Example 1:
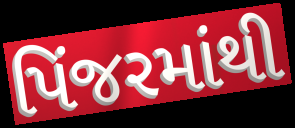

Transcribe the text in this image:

પિંજરમાંથી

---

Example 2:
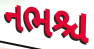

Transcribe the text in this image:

નભશ્ચ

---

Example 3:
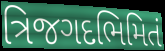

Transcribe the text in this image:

ત્રિજગદભિમિતં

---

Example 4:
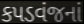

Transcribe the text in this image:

કપડવંજનાં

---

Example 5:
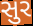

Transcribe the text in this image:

સુર